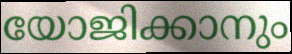
യോജിക്കാനും